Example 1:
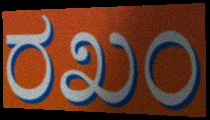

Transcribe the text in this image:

ರಖಂ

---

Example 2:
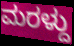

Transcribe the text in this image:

ಮರಳ್ದು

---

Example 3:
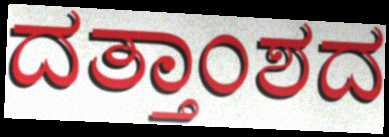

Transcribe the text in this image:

ದತ್ತಾಂಶದ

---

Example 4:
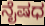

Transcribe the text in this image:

ನೈಷಧ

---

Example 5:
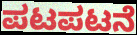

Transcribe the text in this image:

ಪಟಪಟನೆ